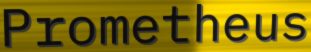
Prometheus